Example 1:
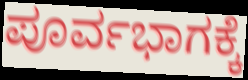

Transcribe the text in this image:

ಪೂರ್ವಭಾಗಕ್ಕೆ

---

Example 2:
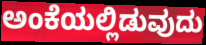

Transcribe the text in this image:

ಅಂಕೆಯಲ್ಲಿಡುವುದು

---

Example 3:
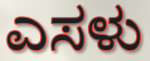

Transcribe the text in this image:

ಎಸಳು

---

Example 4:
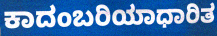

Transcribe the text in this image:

ಕಾದಂಬರಿಯಾಧಾರಿತ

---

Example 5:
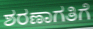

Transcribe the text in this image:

ಶರಣಾಗತಿಗೆ